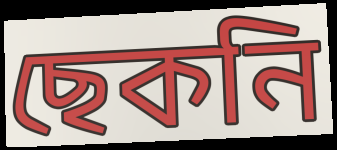
ছেকনি